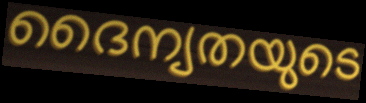
ദൈന്യതയുടെ